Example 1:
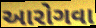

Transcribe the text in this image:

આરોગવા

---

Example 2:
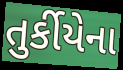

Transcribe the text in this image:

તુર્કીયેના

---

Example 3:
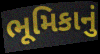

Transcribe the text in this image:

ભૂમિકાનું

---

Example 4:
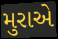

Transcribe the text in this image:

મુરાએ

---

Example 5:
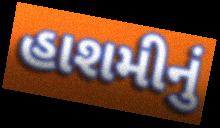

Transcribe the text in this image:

હાશમીનું